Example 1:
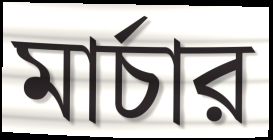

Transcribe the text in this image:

মার্চার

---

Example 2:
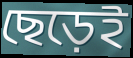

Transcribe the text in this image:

ছেড়েই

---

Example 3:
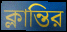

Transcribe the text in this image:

ক্লান্তির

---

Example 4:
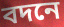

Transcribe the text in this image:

বদনে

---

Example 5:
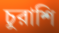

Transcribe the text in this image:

চুরাশি